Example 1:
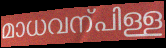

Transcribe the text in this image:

മാധവന്പിള്ള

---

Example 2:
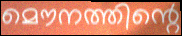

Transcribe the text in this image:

മൌനത്തിന്റെ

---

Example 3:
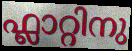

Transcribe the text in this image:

ഫ്ലാറ്റിനു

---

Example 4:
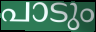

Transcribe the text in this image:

പാടും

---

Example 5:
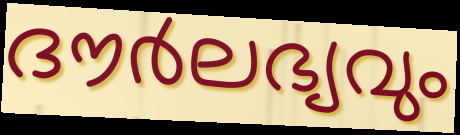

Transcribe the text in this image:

ദൗർലഭ്യവും